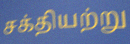
சக்தியற்று